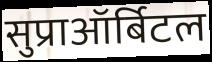
सुप्राऑर्बिटल